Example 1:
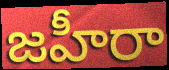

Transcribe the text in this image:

జహీరా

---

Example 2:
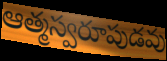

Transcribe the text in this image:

ఆత్మస్వరూపుడవు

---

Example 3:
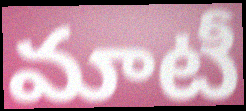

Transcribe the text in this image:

మాటీ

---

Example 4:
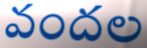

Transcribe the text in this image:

వందల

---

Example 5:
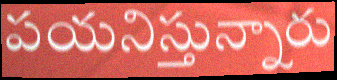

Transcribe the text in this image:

పయనిస్తున్నారు